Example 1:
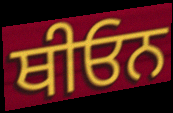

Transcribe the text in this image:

ਥੀਓਨ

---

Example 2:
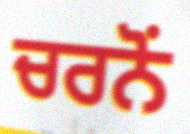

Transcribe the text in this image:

ਚਰਨੋਂ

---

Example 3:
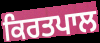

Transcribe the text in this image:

ਕਿਰਤਪਾਲ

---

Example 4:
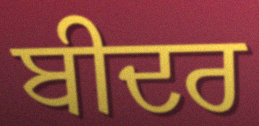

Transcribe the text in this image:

ਬੀਦਰ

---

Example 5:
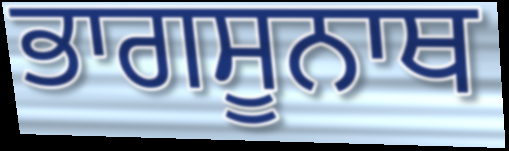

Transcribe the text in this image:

ਭਾਗਸੂਨਾਥ